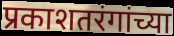
प्रकाशतरंगांच्या